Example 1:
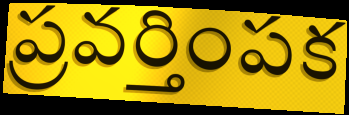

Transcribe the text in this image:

ప్రవర్తింపక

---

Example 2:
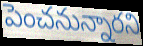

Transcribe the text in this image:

పెంచనున్నారని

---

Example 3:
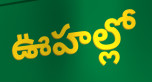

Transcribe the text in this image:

ఊహల్లో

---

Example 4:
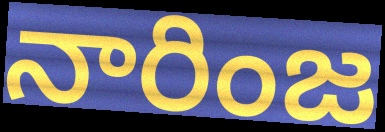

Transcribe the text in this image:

నారింజ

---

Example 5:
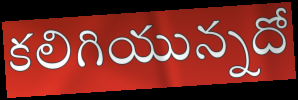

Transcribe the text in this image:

కలిగియున్నదో